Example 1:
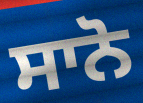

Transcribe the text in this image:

ਸਾਨੋ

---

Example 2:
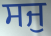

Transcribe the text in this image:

ਸਜੁ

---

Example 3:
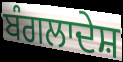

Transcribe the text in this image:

ਬੰਗਲਾਦੇਸ਼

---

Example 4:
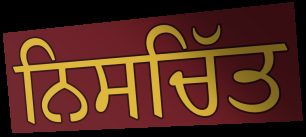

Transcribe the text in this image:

ਨਿਸਚਿੱਤ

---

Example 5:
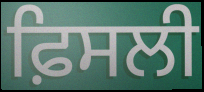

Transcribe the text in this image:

ਫ਼ਿਸਲੀ